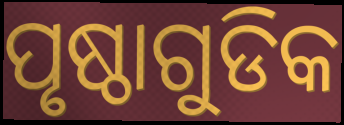
ପୃଷ୍ଠାଗୁଡିକ